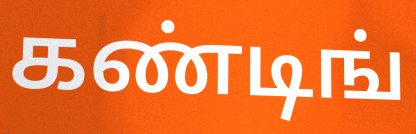
கண்டிங்